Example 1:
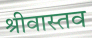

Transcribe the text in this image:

श्रीवास्‍तव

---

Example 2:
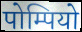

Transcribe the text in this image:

पोम्पियो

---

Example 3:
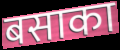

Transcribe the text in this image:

बसाका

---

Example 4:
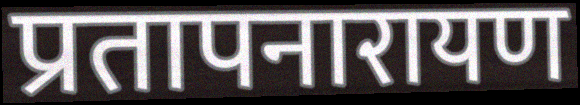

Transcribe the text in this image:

प्रतापनारायण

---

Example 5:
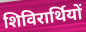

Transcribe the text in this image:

शिविरार्थियों